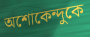
অশোকেন্দুকে